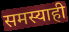
समस्याही